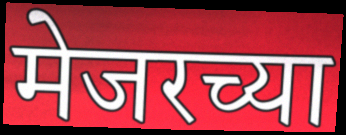
मेजरच्या